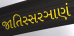
જાતિસ્સરઞાણં